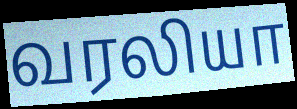
வரலியா